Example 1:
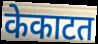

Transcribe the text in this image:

केकाटत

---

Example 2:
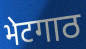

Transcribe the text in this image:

भेटगाठ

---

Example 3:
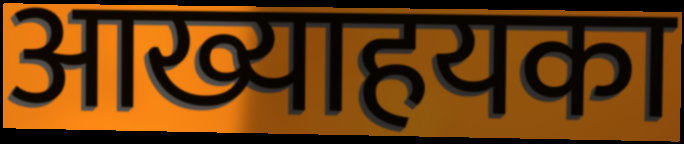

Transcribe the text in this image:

आख्याहयका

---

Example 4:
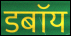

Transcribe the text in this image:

डबॉय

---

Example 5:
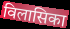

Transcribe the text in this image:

विलासिका